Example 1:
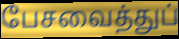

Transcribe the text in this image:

பேசவைத்துப்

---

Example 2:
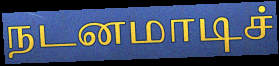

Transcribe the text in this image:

நடனமாடிச்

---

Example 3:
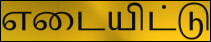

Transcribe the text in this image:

எடையிட்டு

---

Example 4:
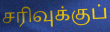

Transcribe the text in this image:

சரிவுக்குப்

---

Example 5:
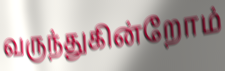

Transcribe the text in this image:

வருந்துகின்றோம்